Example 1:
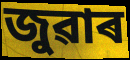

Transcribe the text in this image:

জুৱাৰ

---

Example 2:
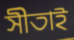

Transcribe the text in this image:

সীতাই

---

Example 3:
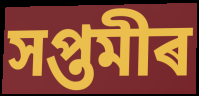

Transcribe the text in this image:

সপ্তমীৰ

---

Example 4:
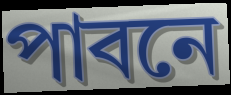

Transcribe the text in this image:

পাবনে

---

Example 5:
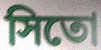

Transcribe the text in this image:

সিতো